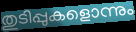
തുടിപ്പുകളൊന്നും